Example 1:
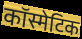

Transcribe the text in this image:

कॉस्मेटिक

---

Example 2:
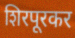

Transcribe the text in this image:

शिरपूरकर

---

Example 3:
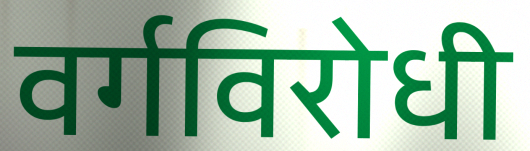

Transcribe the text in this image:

वर्गविरोधी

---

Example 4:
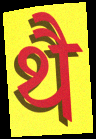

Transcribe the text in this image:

थै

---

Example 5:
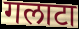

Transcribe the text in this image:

गलाटा